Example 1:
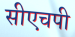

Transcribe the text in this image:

सीएचपी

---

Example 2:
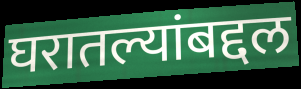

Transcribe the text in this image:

घरातल्यांबद्दल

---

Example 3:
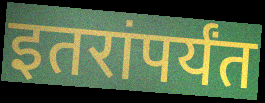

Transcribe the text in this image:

इतरांपर्यंत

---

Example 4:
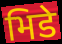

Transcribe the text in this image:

भिडे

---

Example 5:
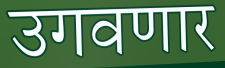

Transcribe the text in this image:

उगवणार